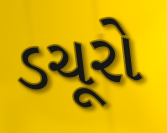
ડચૂરો